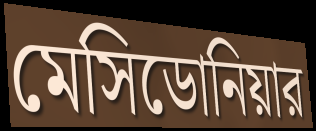
মেসিডোনিয়ার